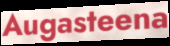
Augasteena